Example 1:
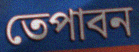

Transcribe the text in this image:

তেপাবন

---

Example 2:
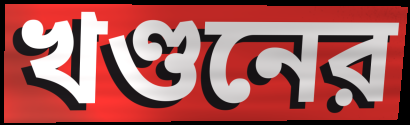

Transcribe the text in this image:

খণ্ডনের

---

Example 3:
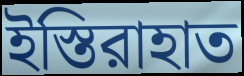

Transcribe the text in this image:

ইস্তিরাহাত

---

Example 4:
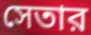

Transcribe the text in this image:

সেতার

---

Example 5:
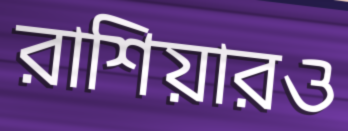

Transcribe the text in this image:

রাশিয়ারও